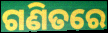
ଗଣିତରେ